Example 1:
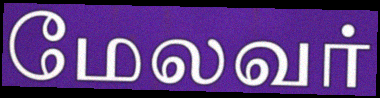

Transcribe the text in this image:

மேலவர்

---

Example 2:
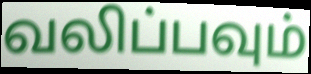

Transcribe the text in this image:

வலிப்பவும்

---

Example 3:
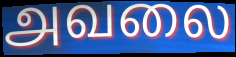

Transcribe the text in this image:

அவலை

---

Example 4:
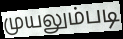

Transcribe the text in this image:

முயலும்படி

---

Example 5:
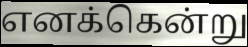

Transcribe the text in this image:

எனக்கென்று